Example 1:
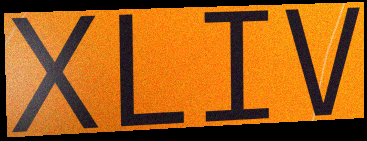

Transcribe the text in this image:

XLIV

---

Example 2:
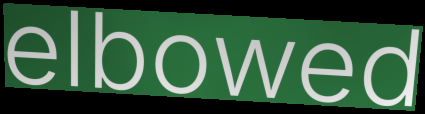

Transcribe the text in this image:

elbowed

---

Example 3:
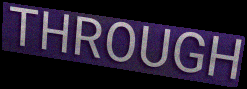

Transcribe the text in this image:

THROUGH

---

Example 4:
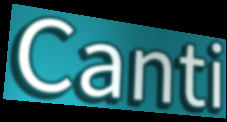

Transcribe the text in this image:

Canti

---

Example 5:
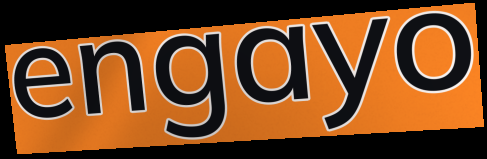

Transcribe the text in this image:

engayo